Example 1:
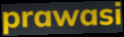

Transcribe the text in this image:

prawasi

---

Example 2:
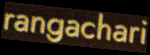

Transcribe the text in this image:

rangachari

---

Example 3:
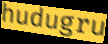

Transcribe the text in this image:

hudugru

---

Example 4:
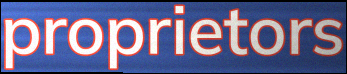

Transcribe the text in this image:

proprietors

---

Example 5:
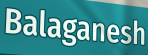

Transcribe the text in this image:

Balaganesh